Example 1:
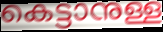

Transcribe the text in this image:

കെട്ടാനുള്ള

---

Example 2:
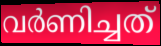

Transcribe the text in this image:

വർണിച്ചത്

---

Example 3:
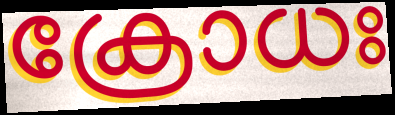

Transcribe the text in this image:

ക്രോധഃ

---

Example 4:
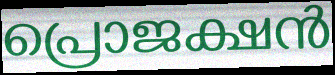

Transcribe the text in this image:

പ്രൊജക്ഷൻ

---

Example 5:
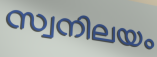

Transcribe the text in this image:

സ്വനിലയം